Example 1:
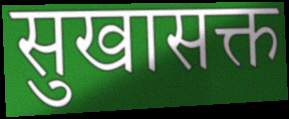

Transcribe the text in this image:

सुखासक्त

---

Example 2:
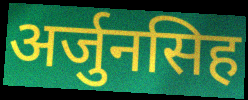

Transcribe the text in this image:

अर्जुनसिह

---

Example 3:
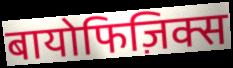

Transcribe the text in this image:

बायोफिज़िक्स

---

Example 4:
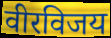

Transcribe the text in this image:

वीरविजय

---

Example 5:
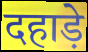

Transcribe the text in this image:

दहाड़े